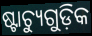
ଷ୍ଟାଚ୍ୟୁଗୁଡ଼ିକ